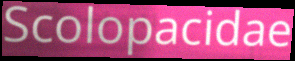
Scolopacidae